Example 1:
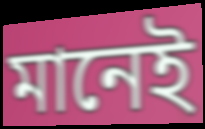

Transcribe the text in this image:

মানেই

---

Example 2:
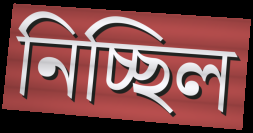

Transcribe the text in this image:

নিচ্ছিল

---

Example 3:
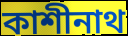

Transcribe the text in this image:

কাশীনাথ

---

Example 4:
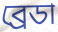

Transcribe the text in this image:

ব্রেডা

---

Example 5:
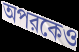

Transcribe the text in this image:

অপরকেও